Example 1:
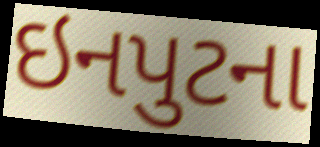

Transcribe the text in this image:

ઇનપુટના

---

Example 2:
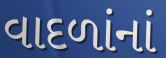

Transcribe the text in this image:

વાદળાંનાં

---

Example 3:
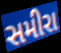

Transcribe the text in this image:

સમીરા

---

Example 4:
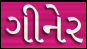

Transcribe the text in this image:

ગીનેર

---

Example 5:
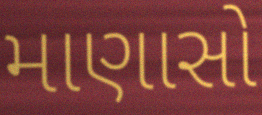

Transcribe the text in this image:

માણાસો